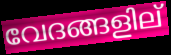
വേദങ്ങളില്